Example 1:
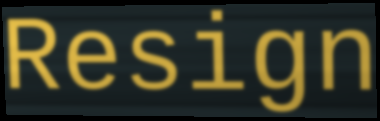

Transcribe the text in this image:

Resign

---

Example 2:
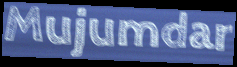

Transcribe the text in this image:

Mujumdar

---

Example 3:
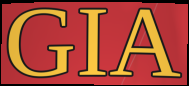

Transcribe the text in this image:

GIA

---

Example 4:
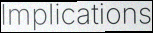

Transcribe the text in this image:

Implications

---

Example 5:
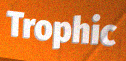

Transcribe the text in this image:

Trophic